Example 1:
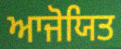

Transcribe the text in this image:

ਆਜੋਯਿਤ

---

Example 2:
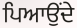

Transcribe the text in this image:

ਪਿਆਉਂਦੇ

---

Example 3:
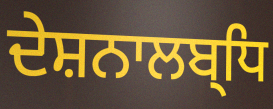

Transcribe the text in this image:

ਦੇਸ਼ਨਾਲਬ੍ਧਿ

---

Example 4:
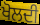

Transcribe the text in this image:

ਖੋਲਦੀ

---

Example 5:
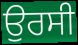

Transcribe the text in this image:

ਉਰਸੀ